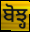
ਬੋਝ੍ਹ